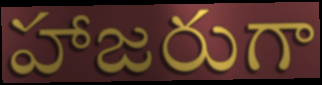
హాజరుగా